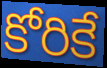
కోరికే